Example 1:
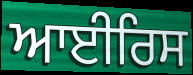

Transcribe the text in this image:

ਆਈਰਿਸ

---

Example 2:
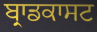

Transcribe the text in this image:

ਬ੍ਰਾਡਕਾਸਟ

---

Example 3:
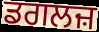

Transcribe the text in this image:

ਡਗਲਜ਼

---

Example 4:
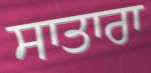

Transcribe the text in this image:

ਸਾਤਾਰਾ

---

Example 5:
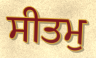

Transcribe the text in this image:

ਸੀਤਮੁ